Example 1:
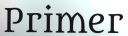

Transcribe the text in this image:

Primer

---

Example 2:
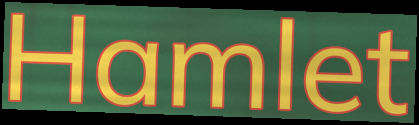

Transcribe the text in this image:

Hamlet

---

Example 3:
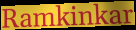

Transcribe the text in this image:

Ramkinkar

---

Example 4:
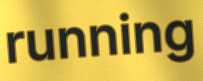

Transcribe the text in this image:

running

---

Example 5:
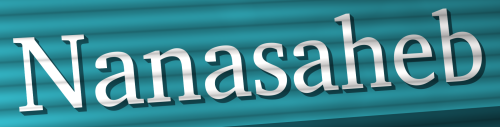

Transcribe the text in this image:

Nanasaheb